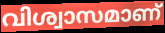
വിശ്വാസമാണ്